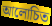
আলোচিত